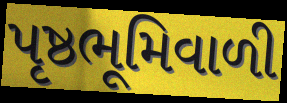
પૃષ્ઠભૂમિવાળી